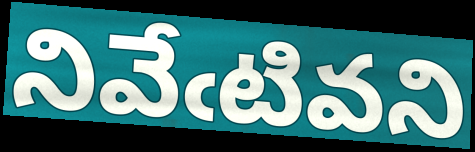
నివేఁటివని